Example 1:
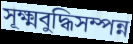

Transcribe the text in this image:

সূক্ষ্মবুদ্ধিসম্পন্ন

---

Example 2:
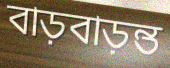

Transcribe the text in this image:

বাড়বাড়ন্ত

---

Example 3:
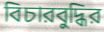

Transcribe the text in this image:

বিচারবুদ্ধির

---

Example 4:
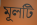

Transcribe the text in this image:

মূলটি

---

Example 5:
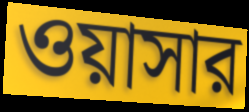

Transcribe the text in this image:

ওয়াসার